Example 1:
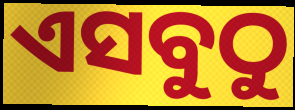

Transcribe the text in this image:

ଏସବୁଠୁ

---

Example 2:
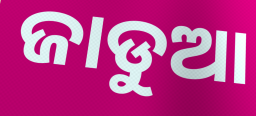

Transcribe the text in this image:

ଜାଡୁଆ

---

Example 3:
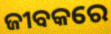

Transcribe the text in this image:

ଜୀବକରେ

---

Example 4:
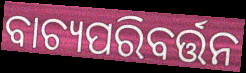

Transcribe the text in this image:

ବାଚ୍ୟପରିବର୍ତ୍ତନ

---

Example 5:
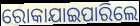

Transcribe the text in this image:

ରୋକାଯାଇପାରିଲେ